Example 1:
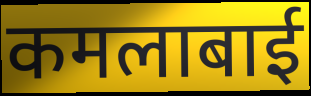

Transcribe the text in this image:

कमलाबाई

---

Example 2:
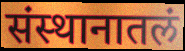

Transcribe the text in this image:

संस्थानातलं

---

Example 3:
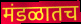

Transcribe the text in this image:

मंडळातच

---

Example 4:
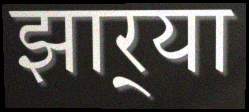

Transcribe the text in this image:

झार्या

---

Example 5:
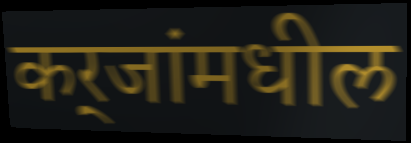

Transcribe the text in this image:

कर्जांमधील